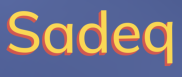
Sadeq